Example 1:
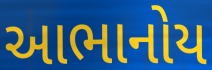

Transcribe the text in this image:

આભાનોય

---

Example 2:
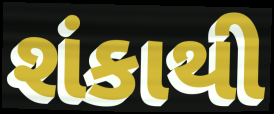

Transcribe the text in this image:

શંકાથી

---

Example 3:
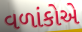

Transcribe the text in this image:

વળાંકોએ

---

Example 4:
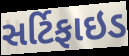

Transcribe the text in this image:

સર્ટિફાઇડ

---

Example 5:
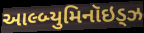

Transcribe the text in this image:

આલ્બ્યુમિનૉઇડ્ઝ